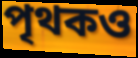
পৃথকও